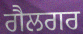
ਗੈਲਗਰ